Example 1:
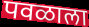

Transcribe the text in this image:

पवळाला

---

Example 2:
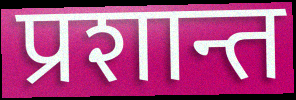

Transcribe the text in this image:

प्रशान्त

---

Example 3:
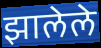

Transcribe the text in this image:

झालेले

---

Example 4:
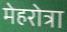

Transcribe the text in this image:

मेहरोत्रा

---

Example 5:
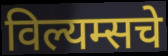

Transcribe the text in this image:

विल्यम्सचे